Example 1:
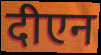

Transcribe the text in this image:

दीएन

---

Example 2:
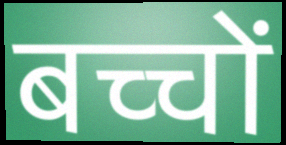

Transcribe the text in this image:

बच्‍चों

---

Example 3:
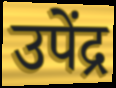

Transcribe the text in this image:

उपेंद्र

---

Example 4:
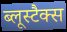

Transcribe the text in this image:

ब्लूस्टैक्स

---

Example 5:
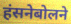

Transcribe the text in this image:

हंसनेबोलने